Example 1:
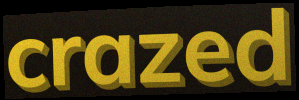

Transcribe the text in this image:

crazed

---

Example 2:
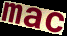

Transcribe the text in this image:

mac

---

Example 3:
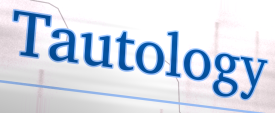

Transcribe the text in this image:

Tautology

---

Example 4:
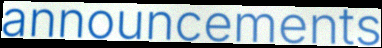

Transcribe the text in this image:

announcements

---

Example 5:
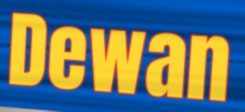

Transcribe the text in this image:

Dewan